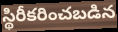
స్థిరీకరించబడిన